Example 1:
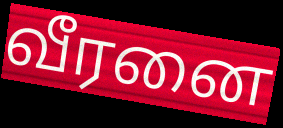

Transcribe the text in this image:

வீரனை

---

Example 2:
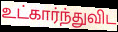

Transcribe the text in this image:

உட்கார்ந்துவிட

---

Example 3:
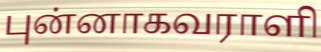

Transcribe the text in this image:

புன்னாகவராளி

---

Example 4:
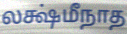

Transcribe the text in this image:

லக்ஷ்மீநாத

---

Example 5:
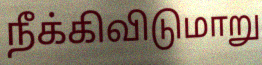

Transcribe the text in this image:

நீக்கிவிடுமாறு